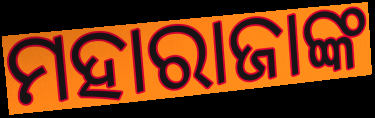
ମହାରାଜାଙ୍କ